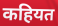
कहियत